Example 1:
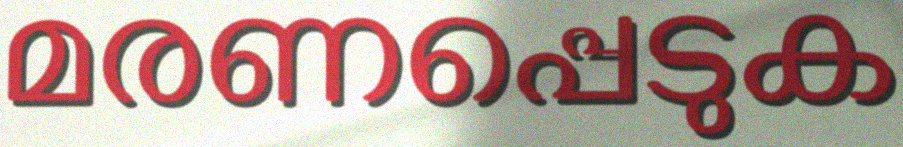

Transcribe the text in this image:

മരണപ്പെടുക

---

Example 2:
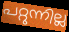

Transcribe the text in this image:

പറ്റുന്നില്ല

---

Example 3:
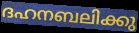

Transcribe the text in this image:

ദഹനബലിക്കു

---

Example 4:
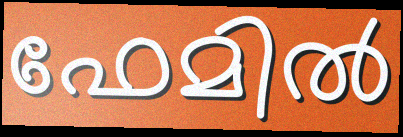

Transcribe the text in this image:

ഫേമിൽ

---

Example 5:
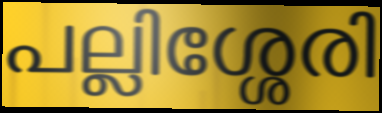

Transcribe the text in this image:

പല്ലിശ്ശേരി